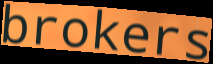
brokers